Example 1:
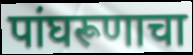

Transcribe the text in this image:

पांघरूणाचा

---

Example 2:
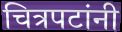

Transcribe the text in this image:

चित्रपटांनी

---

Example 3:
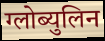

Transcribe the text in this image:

ग्लोब्युलिन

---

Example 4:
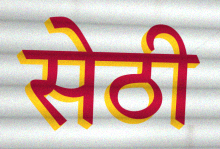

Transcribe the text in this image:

सेठी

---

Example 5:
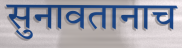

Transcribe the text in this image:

सुनावतानाच